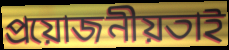
প্ৰয়োজনীয়তাই